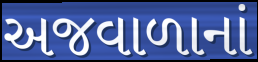
અજવાળાનાં